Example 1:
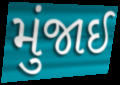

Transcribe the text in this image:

મુંજાઈ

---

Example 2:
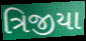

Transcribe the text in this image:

ત્રિજીયા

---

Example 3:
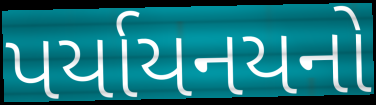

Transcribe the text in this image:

પર્યાયનયનો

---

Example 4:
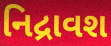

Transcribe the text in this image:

નિદ્રાવશ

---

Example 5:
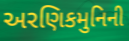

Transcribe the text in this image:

અરણિકમુનિની